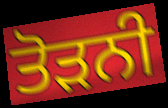
ਤੋੜਨੀ